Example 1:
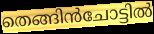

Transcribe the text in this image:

തെങ്ങിൻചോട്ടിൽ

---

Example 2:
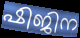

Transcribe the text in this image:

ഷിജിന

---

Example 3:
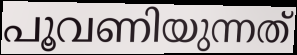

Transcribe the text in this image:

പൂവണിയുന്നത്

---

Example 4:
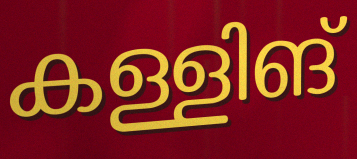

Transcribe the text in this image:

കള്ളിങ്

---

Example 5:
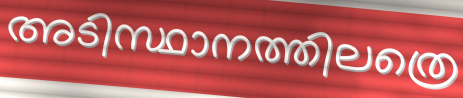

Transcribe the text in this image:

അടിസ്ഥാനത്തിലത്രെ